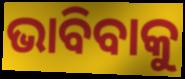
ଭାବିବାକୁ